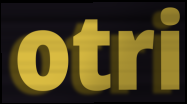
otri